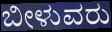
ಬೀಳುವರು